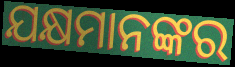
ଯକ୍ଷମାନଙ୍କର